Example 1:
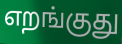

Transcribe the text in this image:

எறங்குது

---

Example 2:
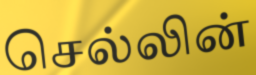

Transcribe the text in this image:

செல்லின்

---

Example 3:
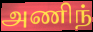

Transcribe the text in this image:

அணிந்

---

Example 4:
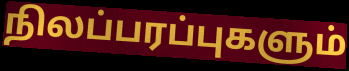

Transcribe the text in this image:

நிலப்பரப்புகளும்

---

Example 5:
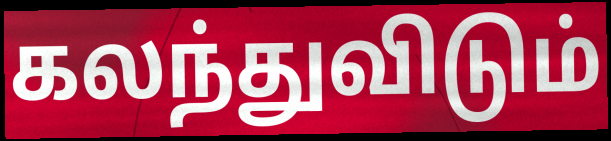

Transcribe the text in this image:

கலந்துவிடும்